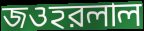
জওহরলাল